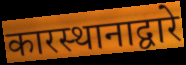
कारस्थानाद्वारे